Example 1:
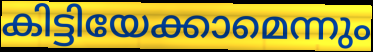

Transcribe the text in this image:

കിട്ടിയേക്കാമെന്നും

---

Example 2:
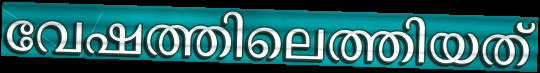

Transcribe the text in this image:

വേഷത്തിലെത്തിയത്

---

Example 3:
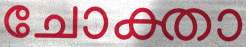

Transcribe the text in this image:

ചോക്താ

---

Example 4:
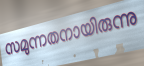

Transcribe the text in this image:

സമുന്നതനായിരുന്നു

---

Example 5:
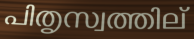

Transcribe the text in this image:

പിതൃസ്വത്തില്